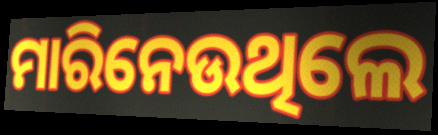
ମାରିନେଉଥିଲେ